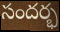
సందర్భ